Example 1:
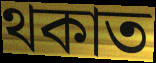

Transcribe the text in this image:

থকাত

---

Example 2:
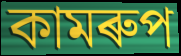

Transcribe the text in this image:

কামৰুপ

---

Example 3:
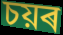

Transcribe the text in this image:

চয়ৰ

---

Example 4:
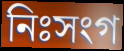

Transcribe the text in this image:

নিঃসংগ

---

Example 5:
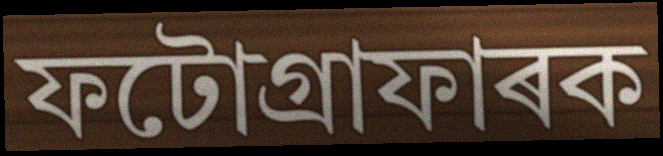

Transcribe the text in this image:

ফটোগ্ৰাফাৰক